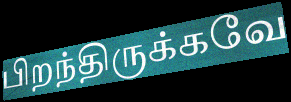
பிறந்திருக்கவே